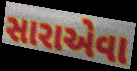
સારાએવા